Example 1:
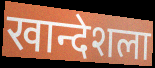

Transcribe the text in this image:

खान्देशला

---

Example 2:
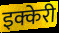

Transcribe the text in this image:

इक्केरी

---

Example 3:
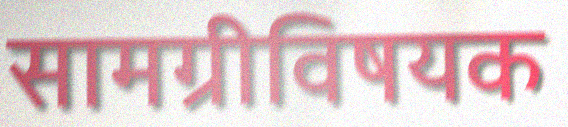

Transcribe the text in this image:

सामग्रीविषयक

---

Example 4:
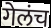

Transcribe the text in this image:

गेलंच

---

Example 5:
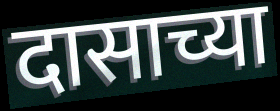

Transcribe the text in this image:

दासाच्या